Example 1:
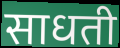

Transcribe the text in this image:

साधती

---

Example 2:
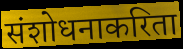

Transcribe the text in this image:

संशोधनाकरिता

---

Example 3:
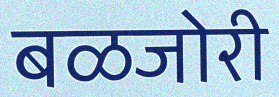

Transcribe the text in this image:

बळजोरी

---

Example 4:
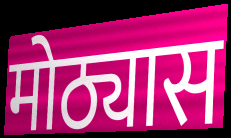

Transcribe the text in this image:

मोठ्यास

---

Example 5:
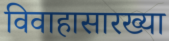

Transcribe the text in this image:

विवाहासारख्या